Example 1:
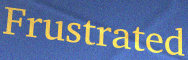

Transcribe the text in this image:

Frustrated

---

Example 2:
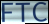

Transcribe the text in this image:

FTC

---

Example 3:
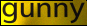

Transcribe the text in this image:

gunny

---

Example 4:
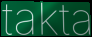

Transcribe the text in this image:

takta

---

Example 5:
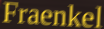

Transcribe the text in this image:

Fraenkel